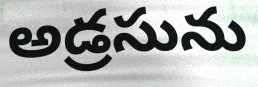
అడ్రసును